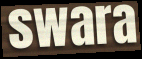
swara